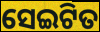
ସେଇଟିତ